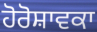
ਹੋਰੋਸ਼ਾਵਕਾ